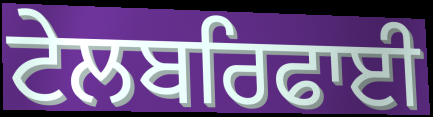
ਟੇਲਬਰਿਫਾਈ